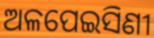
ଅଳପେଇସିଣୀ